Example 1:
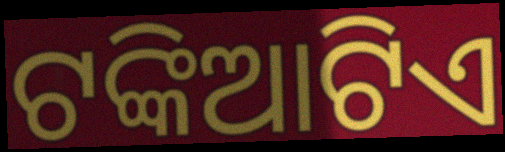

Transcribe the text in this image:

ଟଙ୍କିଆଟିଏ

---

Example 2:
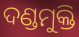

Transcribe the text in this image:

ଦଣ୍ଡମୁକ୍ତି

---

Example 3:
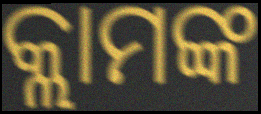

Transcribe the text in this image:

କ୍ଲାମଙ୍କ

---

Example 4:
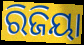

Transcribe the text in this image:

ରିଜିୟା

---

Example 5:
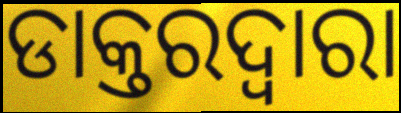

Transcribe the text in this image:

ଡାକ୍ତରଦ୍ୱାରା